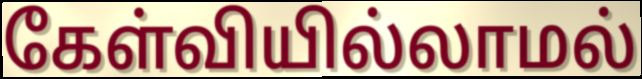
கேள்வியில்லாமல்